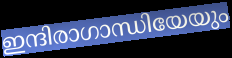
ഇന്ദിരാഗാന്ധിയേയും